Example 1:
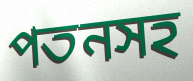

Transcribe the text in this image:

পতনসহ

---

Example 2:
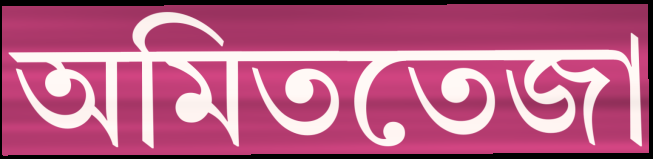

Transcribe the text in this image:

অমিততেজা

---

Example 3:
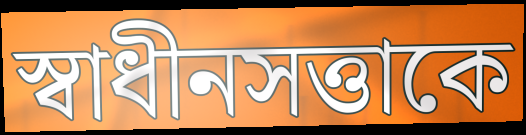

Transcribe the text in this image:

স্বাধীনসত্তাকে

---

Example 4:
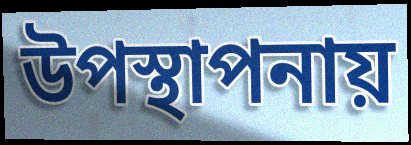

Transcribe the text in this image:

উপস্থাপনায়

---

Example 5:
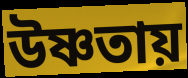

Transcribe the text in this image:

উষ্ণতায়